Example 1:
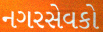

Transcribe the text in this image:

નગરસેવકો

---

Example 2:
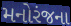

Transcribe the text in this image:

મનોરંજના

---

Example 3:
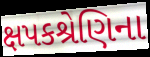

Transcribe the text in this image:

ક્ષપકશ્રેણિના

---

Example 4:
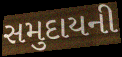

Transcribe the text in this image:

સમુદાયની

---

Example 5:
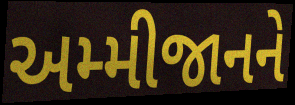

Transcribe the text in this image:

અમ્મીજાનને